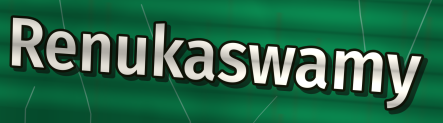
Renukaswamy